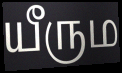
யீரும